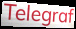
Telegraf